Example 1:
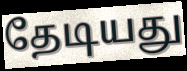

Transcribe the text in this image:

தேடியது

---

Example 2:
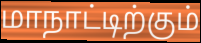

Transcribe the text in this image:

மாநாட்டிற்கும்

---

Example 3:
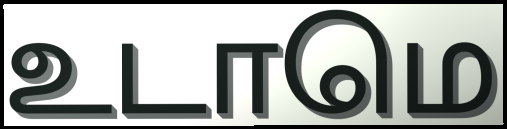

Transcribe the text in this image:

உடாமெ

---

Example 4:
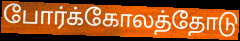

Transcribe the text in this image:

போர்க்கோலத்தோடு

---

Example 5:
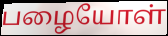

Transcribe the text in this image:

பழையோள்